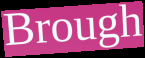
Brough